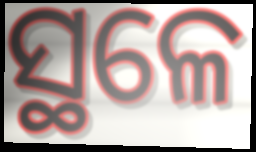
ସ୍ଥଳେ